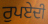
ਰੁਪਏਦੀ